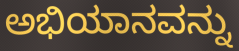
ಅಭಿಯಾನವನ್ನು